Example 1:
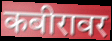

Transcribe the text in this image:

कबीरावर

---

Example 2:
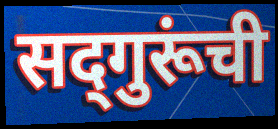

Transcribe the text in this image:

सद्‌गुरूंची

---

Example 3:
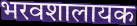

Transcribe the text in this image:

भरवशालायक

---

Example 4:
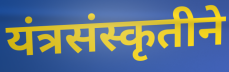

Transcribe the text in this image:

यंत्रसंस्कृतीने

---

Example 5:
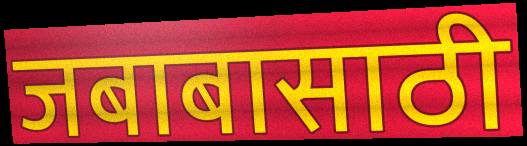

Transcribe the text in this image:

जबाबासाठी